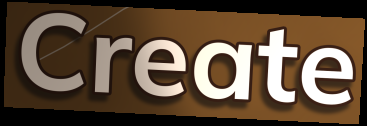
Create